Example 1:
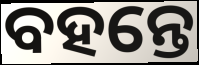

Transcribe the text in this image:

ବହନ୍ତେ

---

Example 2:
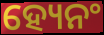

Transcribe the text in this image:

ହ୍ୟେନଂ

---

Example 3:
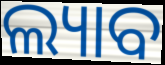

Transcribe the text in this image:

ଲ୍ୟାବ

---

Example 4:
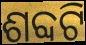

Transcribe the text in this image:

ଶବ୍ଦଟି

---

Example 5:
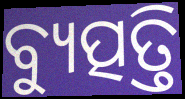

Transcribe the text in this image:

ବ୍ୟୁତ୍ପତ୍ତି